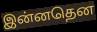
இன்னதென